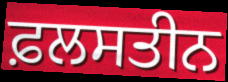
ਫ਼ਲਸਤੀਨ